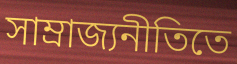
সাম্রাজ্যনীতিতে